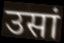
उसां